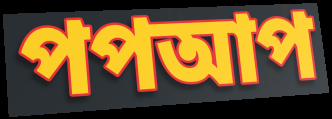
পপআপ